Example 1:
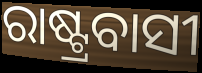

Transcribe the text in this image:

ରାଷ୍ଟ୍ରବାସୀ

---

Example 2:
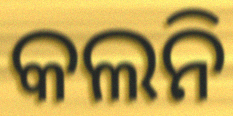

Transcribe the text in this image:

କଲନି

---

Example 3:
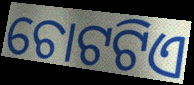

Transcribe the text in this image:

ଚୋଟଟିଏ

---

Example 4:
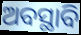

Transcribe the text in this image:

ଅବସ୍ଥାବି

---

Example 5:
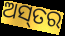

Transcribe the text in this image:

ଅସ୍‌ତର